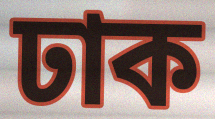
ঢাক